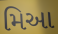
મિઆ